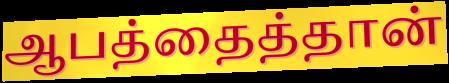
ஆபத்தைத்தான்